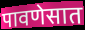
पावणेसात